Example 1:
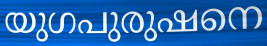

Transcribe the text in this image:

യുഗപുരുഷനെ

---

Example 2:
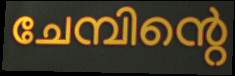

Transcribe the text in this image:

ചേമ്പിന്റെ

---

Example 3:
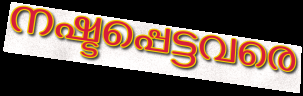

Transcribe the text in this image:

നഷ്ടപ്പെട്ടവരെ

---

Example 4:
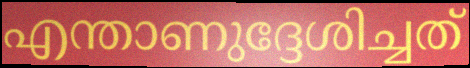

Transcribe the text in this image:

എന്താണുദ്ദേശിച്ചത്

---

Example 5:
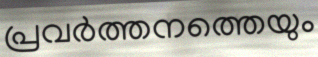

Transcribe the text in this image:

പ്രവർത്തനത്തെയും